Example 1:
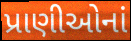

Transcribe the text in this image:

પ્રાણીઓનાં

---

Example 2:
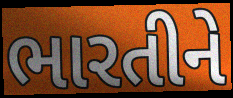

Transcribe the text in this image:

ભારતીને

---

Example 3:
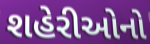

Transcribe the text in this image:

શહેરીઓનો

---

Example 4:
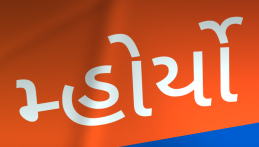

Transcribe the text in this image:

મ્હોર્યો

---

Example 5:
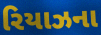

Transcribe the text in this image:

રિયાઝના